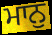
ਮਾਨੁ